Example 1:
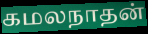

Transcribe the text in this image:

கமலநாதன்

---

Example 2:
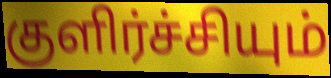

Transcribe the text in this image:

குளிர்ச்சியும்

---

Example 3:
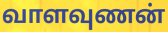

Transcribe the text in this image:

வாளவுணன்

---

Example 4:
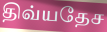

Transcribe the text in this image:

திவ்யதேச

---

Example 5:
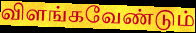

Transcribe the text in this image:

விளங்கவேண்டும்